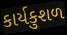
કાર્યકુશળ